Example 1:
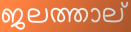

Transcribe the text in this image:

ജലത്താല്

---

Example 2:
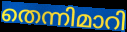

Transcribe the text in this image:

തെന്നിമാറി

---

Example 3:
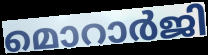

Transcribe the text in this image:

മൊറാർജി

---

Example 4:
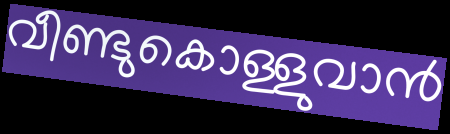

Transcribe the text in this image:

വീണ്ടുകൊള്ളുവാൻ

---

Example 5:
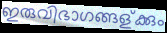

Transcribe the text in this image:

ഇരുവിഭാഗങ്ങള്ക്കും